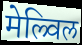
मेल्विल